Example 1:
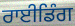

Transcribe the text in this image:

ਰਾਈਡਿੰਗ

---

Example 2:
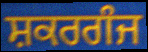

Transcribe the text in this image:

ਸ਼ਕਰਗੰਜ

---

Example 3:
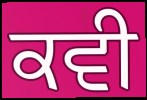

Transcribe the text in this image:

ਕਵੀ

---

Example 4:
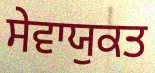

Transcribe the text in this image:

ਸੇਵਾਯੁਕਤ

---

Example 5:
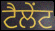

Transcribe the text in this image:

ਟੈਲੇੰਟ